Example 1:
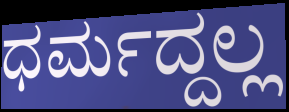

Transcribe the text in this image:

ಧರ್ಮದ್ದಲ್ಲ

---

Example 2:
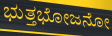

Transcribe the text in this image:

ಭುತ್ತಭೋಜನೋ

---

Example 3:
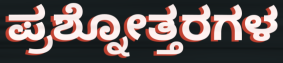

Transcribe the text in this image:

ಪ್ರಶ್ನೋತ್ತರಗಳ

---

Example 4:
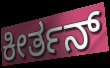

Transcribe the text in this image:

ಕೀರ್ತನ್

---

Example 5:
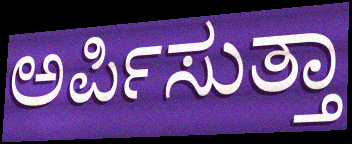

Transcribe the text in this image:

ಅರ್ಪಿಸುತ್ತಾ